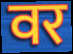
वर